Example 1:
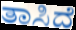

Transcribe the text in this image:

ತಾಸಿದೆ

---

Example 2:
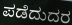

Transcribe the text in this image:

ಪಡೆದುದರ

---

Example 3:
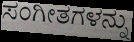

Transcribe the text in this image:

ಸಂಗೀತಗಳನ್ನು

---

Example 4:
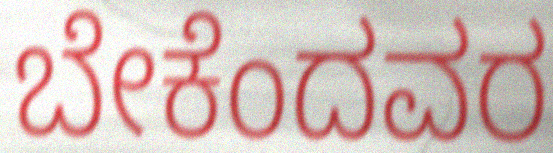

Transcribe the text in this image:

ಬೇಕೆಂದವರ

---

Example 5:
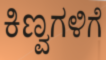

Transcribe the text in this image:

ಕಿಣ್ವಗಳಿಗೆ